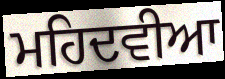
ਮਹਿਦਵੀਆ